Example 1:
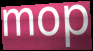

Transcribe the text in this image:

mop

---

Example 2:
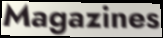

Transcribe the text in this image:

Magazines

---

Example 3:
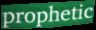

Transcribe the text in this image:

prophetic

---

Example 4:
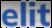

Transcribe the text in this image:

elit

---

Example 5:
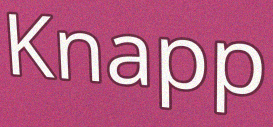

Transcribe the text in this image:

Knapp